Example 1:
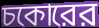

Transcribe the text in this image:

চকোরের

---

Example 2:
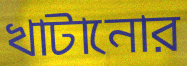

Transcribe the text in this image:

খাটানোর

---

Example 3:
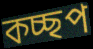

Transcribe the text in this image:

কচ্ছপ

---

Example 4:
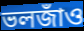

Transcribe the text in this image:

ভলজাঁও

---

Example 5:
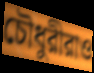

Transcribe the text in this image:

চৌধুরীরাও